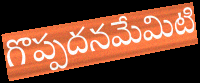
గొప్పదనమేమిటి